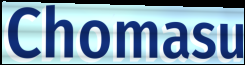
Chomasu